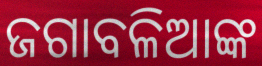
ଜଗାବଳିଆଙ୍କ